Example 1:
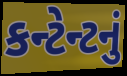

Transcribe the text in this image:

કન્ટેન્ટનું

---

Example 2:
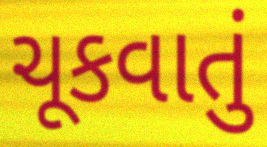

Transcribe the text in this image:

ચૂકવાતું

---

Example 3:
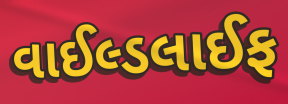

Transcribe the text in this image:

વાઈલ્ડલાઈફ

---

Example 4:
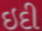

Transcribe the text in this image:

ઇદી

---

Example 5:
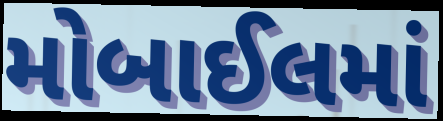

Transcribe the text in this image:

મોબાઈલમાં